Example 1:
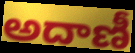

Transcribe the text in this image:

అదాణీ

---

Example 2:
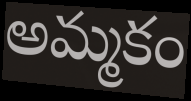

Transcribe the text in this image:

అమ్మకం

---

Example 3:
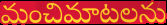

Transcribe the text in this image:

మంచిమాటలను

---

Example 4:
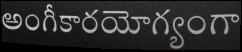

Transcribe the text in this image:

అంగీకారయోగ్యంగా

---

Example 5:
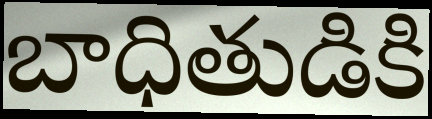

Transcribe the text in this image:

బాధితుడికి